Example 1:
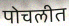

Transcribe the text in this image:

पोचलीत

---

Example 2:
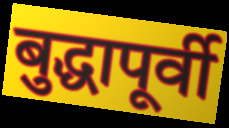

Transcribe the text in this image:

बुद्धापूर्वी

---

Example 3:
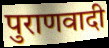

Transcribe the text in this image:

पुराणवादी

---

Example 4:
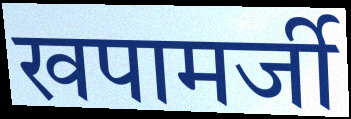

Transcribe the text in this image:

खपामर्जी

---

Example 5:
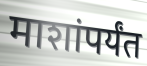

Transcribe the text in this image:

माशांपर्यंत